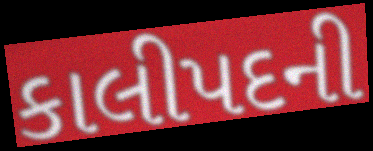
કાલીપદની